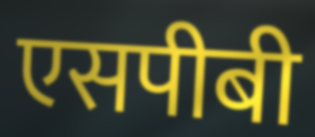
एसपीबी